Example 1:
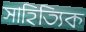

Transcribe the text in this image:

সাহিত্যিক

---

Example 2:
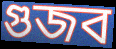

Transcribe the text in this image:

গুজব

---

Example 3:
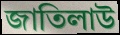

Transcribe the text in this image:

জাতিলাউ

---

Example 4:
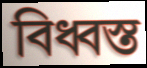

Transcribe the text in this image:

বিধ্বস্ত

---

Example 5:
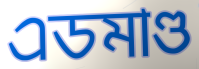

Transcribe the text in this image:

এডমাণ্ড